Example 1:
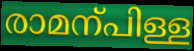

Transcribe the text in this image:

രാമന്പിള്ള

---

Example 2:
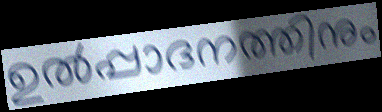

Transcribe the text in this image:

ഉൽപ്പാദനത്തിനും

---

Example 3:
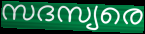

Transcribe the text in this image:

സദസ്യരെ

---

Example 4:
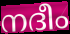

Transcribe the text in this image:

നദീം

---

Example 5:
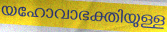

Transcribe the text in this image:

യഹോവാഭക്തിയുള്ള